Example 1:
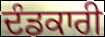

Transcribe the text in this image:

ਦੰਡਕਾਰੀ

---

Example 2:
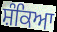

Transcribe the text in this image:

ਸ਼ੰਕਿਆ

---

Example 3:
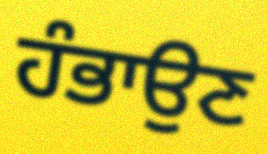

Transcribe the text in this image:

ਹੰਭਾਉਣ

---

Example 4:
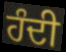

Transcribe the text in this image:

ਹੰਦੀ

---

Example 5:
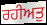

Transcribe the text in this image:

ਰਹੀਅਤੁ